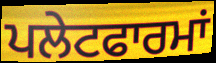
ਪਲੇਟਫਾਰਮਾਂ